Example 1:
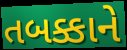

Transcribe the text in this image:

તબક્કાને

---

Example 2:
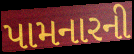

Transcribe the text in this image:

પામનારની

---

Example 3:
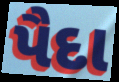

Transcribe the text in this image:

પૈદા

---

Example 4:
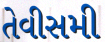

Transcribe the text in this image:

તેવીસમી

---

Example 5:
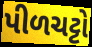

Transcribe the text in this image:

પીળચટ્ટો